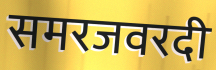
समरजवरदी